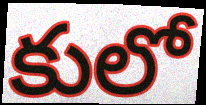
కులో